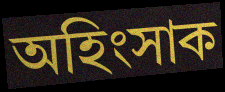
অহিংসাক